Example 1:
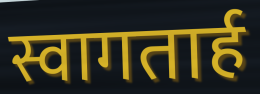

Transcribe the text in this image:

स्वागतार्ह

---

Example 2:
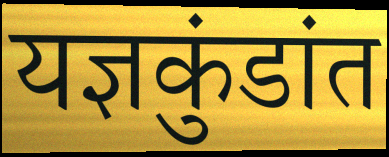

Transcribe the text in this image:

यज्ञकुंडांत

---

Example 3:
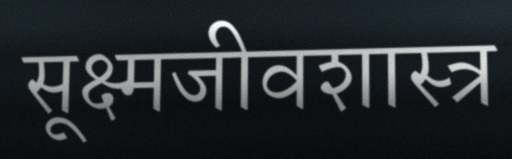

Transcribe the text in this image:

सूक्ष्मजीवशास्त्र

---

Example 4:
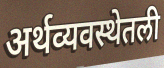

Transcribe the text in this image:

अर्थव्यवस्थेतली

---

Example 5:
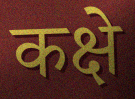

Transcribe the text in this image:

कक्षे